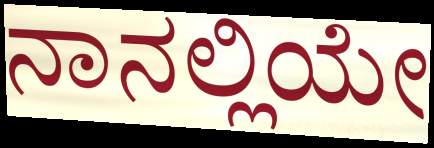
ನಾನಲ್ಲಿಯೇ